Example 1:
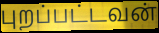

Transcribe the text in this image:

புறப்பட்டவன்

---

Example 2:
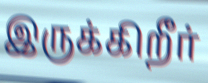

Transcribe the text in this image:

இருக்கிறீர்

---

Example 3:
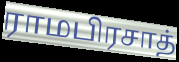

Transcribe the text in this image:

ராமபிரசாத்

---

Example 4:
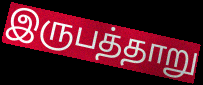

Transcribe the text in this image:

இருபத்தாறு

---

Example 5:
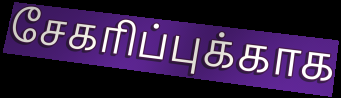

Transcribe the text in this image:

சேகரிப்புக்காக